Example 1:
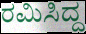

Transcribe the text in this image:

ರಮಿಸಿದ್ದ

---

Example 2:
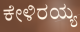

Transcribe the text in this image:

ಕೇಳಿರಯ್ಯ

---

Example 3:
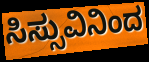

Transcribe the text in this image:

ಸಿಸ್ಸುವಿನಿಂದ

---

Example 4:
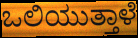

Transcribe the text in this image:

ಒಲಿಯುತ್ತಾಳೆ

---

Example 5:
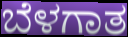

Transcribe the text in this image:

ಬೆಳಗಾತ